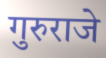
गुरुराजे